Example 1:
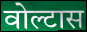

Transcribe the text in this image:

वोल्टास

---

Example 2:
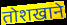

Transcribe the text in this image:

तोशखाने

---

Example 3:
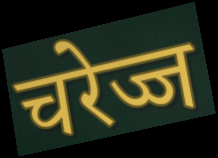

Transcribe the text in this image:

चरेज्ज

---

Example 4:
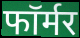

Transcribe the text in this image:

फॉर्मर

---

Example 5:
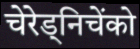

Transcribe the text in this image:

चेरेड्निचेंको